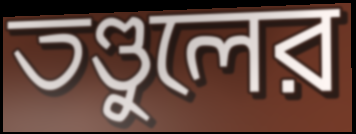
তণ্ডুলের